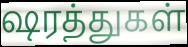
ஷரத்துகள்